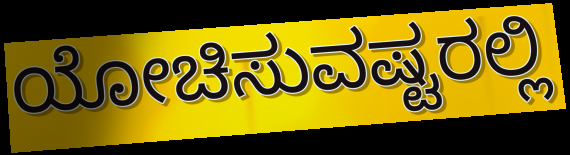
ಯೋಚಿಸುವಷ್ಟರಲ್ಲಿ